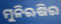
ମୁନିଋଷିର